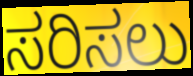
ಸರಿಸಲು